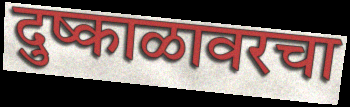
दुष्काळावरचा